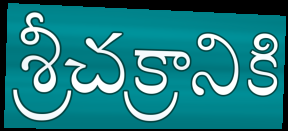
శ్రీచక్రానికి